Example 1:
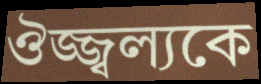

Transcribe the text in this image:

ঔজ্জ্বল্যকে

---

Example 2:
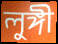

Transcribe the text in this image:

লুঙ্গী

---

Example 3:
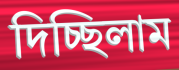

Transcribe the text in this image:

দিচ্ছিলাম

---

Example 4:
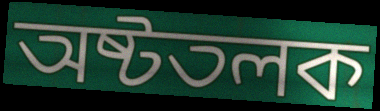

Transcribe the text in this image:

অষ্টতলক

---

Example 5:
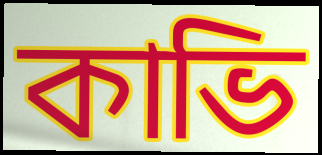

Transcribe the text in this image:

কাভি